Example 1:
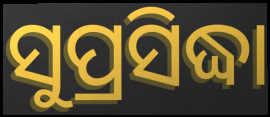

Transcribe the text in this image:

ସୁପ୍ରସିଦ୍ଧା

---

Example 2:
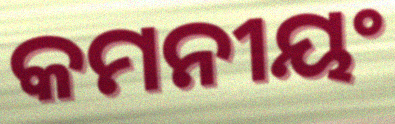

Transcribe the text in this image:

କମନୀୟଂ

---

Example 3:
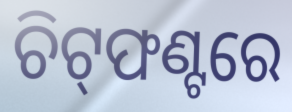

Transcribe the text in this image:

ଚିଟ୍‌ଫଣ୍ଟରେ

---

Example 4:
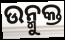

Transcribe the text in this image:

ଉନ୍ମୁକ୍ତ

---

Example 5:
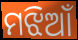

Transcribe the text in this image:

ମଝିଆଁ